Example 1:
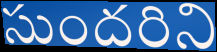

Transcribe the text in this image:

సుందరిని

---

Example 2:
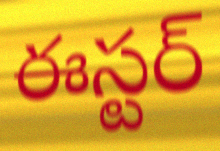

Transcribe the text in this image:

ఈస్టర్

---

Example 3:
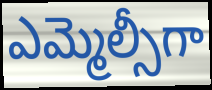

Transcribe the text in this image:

ఎమ్మెల్సీగా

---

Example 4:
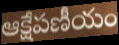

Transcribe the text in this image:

ఆక్షేపణీయం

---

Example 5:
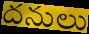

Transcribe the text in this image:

దనులు